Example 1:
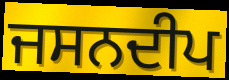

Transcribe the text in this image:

ਜਸਨਦੀਪ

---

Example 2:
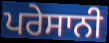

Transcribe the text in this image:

ਪਰੇਸਾਨੀ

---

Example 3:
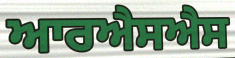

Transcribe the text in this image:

ਆਰਐਸਐਸ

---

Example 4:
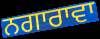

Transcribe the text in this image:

ਨਗਾਰਾਵਾ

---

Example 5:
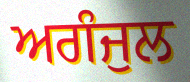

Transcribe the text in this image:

ਅਗੰਜੁਲ